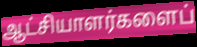
ஆட்சியாளர்களைப்